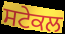
ਸਟੇਕਲ